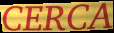
CERCA